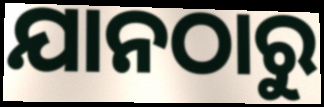
ଯାନଠାରୁ